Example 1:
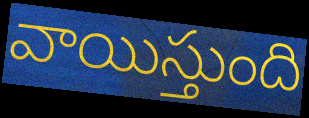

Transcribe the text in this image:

వాయిస్తుంది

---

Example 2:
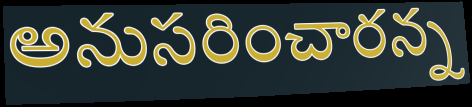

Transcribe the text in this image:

అనుసరించారన్న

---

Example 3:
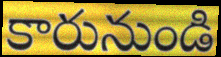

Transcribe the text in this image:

కారునుండి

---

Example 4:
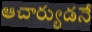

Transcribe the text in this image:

ఆచార్యుడనే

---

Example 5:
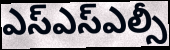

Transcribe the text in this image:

ఎస్ఎస్ఎల్సీ